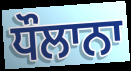
ਧੌਲਾਨਾ